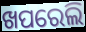
ଖପରେଲି